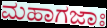
ಮಹಾಗಜಾಃ